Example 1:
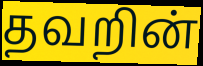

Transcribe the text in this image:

தவறின்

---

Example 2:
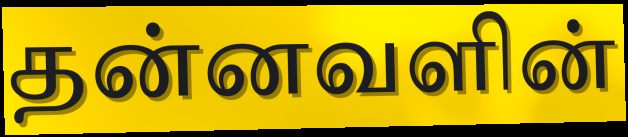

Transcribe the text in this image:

தன்னவளின்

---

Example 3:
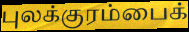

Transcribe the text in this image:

புலக்குரம்பைக்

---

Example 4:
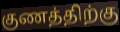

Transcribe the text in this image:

குணத்திற்கு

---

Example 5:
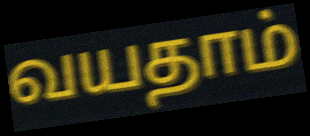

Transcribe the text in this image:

வயதாம்